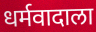
धर्मवादाला